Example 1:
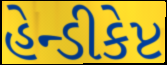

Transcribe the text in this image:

હેન્ડીકેપ્ટ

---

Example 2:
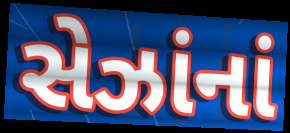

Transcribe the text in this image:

સેઝાંનાં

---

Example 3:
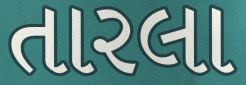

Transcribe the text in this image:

તારલા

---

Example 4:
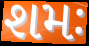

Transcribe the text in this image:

શમઃ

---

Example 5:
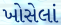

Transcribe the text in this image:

ખોસેલાં